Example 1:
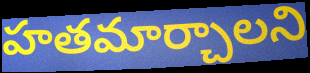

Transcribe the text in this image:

హతమార్చాలని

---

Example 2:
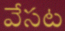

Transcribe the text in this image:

వేసట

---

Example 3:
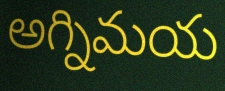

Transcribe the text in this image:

అగ్నిమయ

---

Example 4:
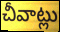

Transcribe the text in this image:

చీవాట్లు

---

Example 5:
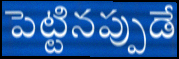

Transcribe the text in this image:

పెట్టినప్పుడే